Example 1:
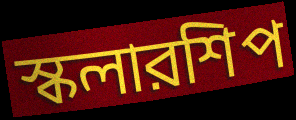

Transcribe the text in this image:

স্কলারশিপ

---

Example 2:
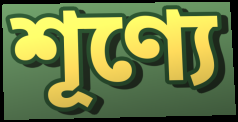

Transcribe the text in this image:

শূণ্যে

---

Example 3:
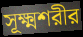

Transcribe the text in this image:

সূক্ষ্মশরীর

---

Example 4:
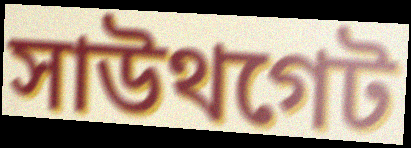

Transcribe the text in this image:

সাউথগেট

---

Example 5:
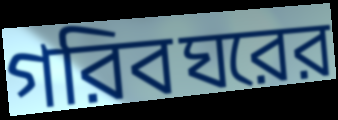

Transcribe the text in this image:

গরিবঘরের